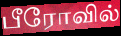
பீரோவில்